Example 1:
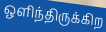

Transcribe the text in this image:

ஒளிந்திருக்கிற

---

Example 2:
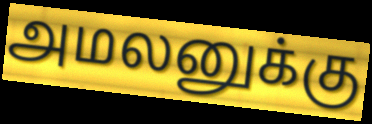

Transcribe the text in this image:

அமலனுக்கு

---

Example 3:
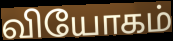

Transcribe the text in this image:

வியோகம்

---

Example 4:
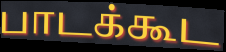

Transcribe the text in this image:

பாடக்கூட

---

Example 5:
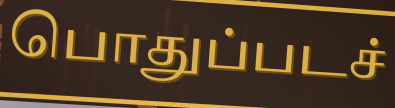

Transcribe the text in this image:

பொதுப்படச்